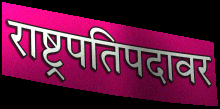
राष्ट्रपतिपदावर